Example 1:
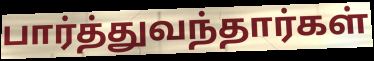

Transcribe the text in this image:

பார்த்துவந்தார்கள்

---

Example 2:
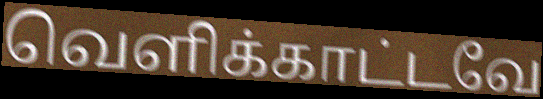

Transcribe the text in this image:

வெளிக்காட்டவே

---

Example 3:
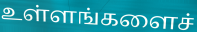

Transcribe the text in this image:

உள்ளங்களைச்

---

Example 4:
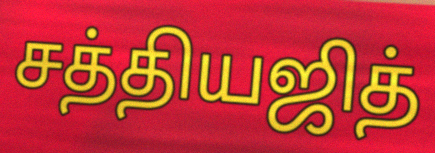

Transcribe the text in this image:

சத்தியஜித்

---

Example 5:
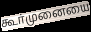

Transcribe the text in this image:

கூர்முனையை